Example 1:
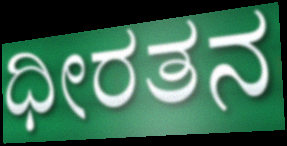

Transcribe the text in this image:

ಧೀರತನ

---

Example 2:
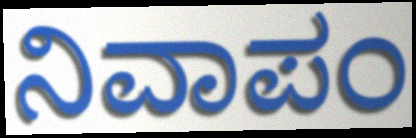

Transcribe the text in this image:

ನಿವಾಪಂ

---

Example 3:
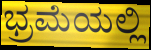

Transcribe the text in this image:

ಭ್ರಮೆಯಲ್ಲಿ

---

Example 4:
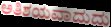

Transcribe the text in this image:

ಅತಿಶಯವಾದುದು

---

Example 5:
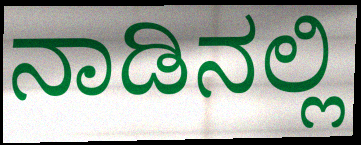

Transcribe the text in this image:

ನಾಡಿನಲ್ಲಿ